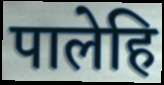
पालेहि